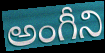
అంగీని